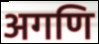
अगणि